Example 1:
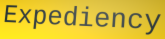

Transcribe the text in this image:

Expediency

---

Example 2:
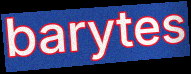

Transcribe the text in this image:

barytes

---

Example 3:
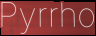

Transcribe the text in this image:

Pyrrho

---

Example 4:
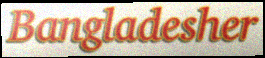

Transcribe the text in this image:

Bangladesher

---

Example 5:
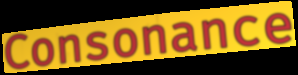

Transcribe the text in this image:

Consonance